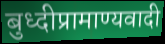
बुध्दीप्रामाण्यवादी